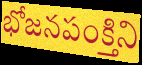
భోజనపంక్తిని